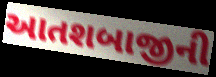
આતશબાજીની